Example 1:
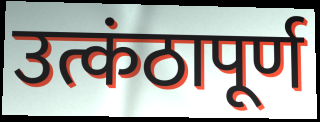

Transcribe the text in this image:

उत्कंठापूर्ण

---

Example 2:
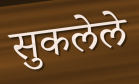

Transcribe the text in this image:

सुकलेले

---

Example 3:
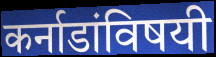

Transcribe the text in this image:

कर्नाडांविषयी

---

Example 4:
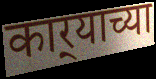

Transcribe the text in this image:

कार्याच्या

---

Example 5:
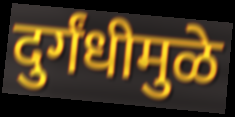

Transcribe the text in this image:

दुर्गंधीमुळे